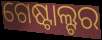
ଗେଷ୍ଟାଲ୍ଟର